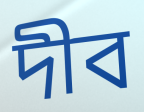
দীব